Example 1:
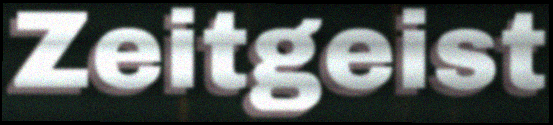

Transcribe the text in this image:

Zeitgeist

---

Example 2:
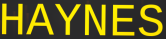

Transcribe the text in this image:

HAYNES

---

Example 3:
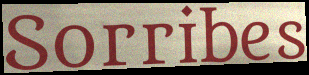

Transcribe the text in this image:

Sorribes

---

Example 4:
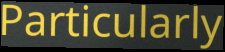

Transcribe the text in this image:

Particularly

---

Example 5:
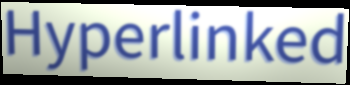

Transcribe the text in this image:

Hyperlinked